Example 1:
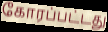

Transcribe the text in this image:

கோரப்பட்டது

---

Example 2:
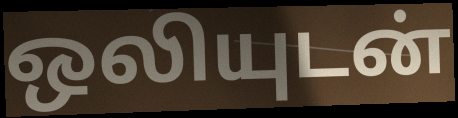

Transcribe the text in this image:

ஒலியுடன்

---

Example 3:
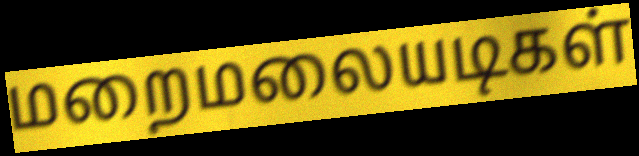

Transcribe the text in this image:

மறைமலையடிகள்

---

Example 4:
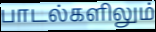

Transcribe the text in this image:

பாடல்களிலும்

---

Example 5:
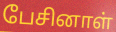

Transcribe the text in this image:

பேசினாள்